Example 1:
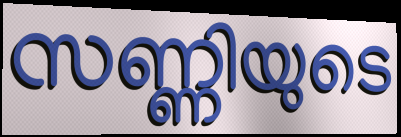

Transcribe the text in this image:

സണ്ണിയുടെ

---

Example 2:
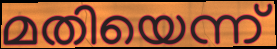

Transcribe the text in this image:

മതിയെന്ന്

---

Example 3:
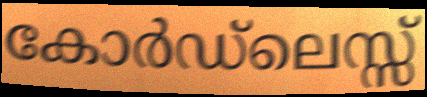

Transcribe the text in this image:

കോർഡ്ലെസ്സ്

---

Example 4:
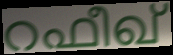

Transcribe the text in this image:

റഫീഖ്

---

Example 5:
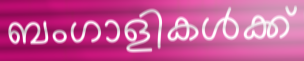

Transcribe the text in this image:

ബംഗാളികൾക്ക്